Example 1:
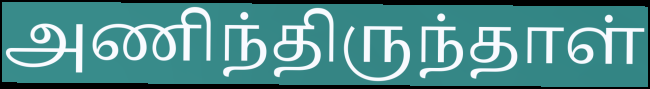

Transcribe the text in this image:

அணிந்திருந்தாள்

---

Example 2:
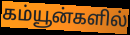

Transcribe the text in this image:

கம்யூன்களில்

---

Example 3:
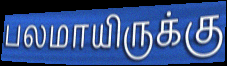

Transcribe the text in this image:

பலமாயிருக்கு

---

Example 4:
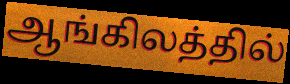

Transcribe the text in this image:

ஆங்கிலத்தில்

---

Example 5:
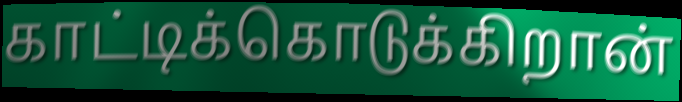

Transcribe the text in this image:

காட்டிக்கொடுக்கிறான்